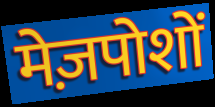
मेज़पोशों